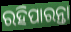
ରହିପାରନ୍ତା